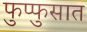
फुप्फुसात